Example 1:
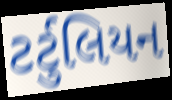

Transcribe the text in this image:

ટર્ટુલિયન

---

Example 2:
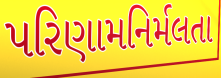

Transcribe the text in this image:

પરિણામનિર્મલતા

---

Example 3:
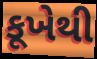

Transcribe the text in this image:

કૂખેથી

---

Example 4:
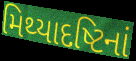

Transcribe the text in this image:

મિથ્યાદષ્ટિનાં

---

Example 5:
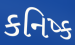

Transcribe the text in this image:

કનિષ્ક